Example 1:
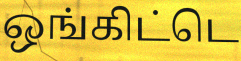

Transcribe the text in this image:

ஒங்கிட்டெ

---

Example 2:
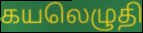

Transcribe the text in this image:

கயலெழுதி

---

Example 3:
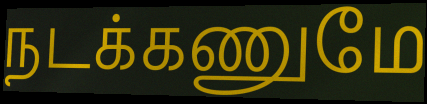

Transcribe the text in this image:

நடக்கணுமே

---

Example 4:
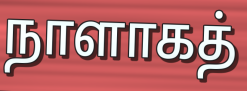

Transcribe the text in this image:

நாளாகத்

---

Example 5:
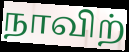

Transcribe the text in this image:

நாவிற்